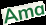
Ama